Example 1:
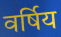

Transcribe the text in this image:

वर्षिय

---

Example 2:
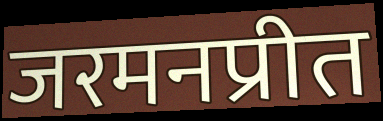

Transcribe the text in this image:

जरमनप्रीत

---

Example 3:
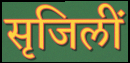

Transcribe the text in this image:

सृजिलीं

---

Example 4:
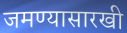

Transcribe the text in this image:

जमण्यासारखी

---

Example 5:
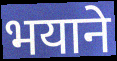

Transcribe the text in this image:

भयाने